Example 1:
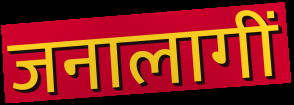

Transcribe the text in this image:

जनालागीं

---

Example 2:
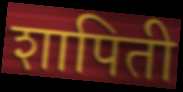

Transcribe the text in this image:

शापिती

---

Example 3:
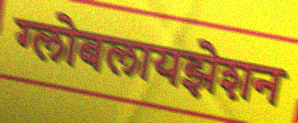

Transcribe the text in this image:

ग्लोबलायझेशन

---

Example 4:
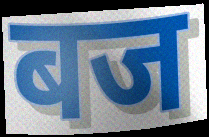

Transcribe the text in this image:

बज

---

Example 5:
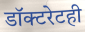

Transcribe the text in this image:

डॉक्‍टरेटही